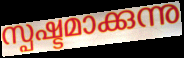
സ്പഷ്ടമാക്കുന്നു